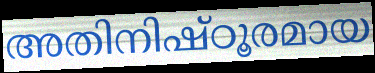
അതിനിഷ്ഠൂരമായ